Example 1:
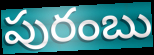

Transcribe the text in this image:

పురంబు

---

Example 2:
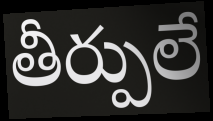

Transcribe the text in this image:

తీర్పులే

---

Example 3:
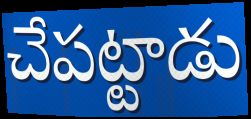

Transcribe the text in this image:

చేపట్టాడు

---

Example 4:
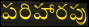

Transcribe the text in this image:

పరిహారపు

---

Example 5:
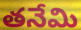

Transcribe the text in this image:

తనేమి